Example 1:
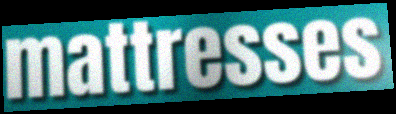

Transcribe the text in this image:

mattresses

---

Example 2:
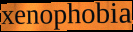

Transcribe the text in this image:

xenophobia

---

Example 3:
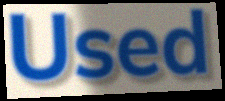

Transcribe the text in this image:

Used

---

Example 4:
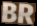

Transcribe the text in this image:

BR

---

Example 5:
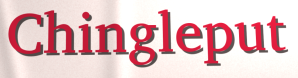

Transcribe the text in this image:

Chingleput